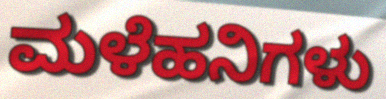
ಮಳೆಹನಿಗಳು